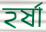
হর্ষা